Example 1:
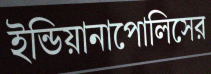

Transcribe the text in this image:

ইন্ডিয়ানাপোলিসের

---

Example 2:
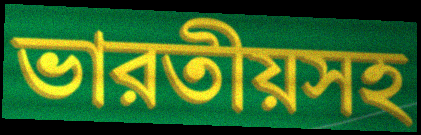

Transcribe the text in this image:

ভারতীয়সহ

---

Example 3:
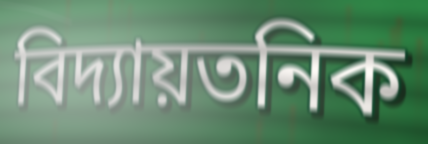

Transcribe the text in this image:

বিদ্যায়তনিক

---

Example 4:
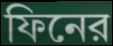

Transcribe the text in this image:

ফিনের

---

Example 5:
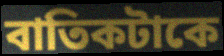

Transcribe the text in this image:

বাতিকটাকে